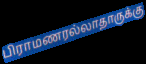
பிராமணரல்லாதாருக்கு